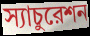
স্যাচুরেশন